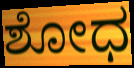
ಶೋಧ